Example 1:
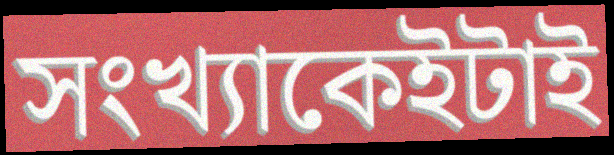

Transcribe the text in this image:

সংখ্যাকেইটাই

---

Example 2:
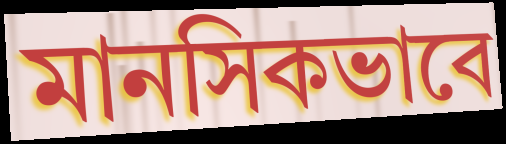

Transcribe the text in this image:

মানসিকভাবে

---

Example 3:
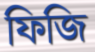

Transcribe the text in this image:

ফিজি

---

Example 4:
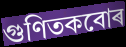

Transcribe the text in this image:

গুণিতকবোৰ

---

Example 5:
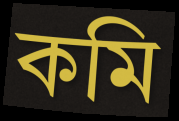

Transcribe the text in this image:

কমি